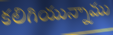
కలిగియున్నాము